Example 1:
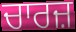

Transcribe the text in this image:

ਚਾਰਜ਼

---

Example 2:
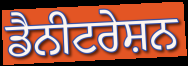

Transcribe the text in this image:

ਡੈਨੀਟਰੇਸ਼ਨ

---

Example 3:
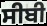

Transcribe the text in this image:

ਸੀਬੀ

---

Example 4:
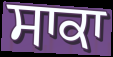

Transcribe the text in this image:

ਸਾਕਾ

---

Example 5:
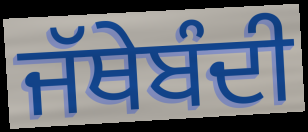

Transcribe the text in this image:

ਜੱਥੇਬੰਦੀ